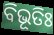
ବିଭୂତିଃ